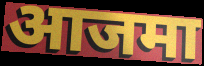
आजमा